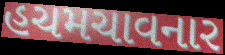
હચમચાવનાર